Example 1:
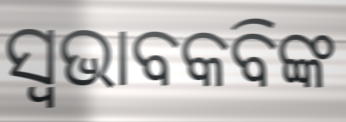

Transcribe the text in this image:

ସ୍ଵଭାବକବିଙ୍କ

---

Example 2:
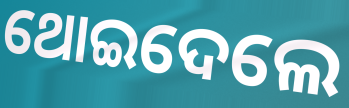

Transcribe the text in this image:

ଥୋଇଦେଲେ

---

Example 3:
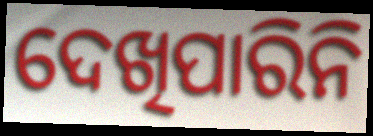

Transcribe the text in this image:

ଦେଖିପାରିନି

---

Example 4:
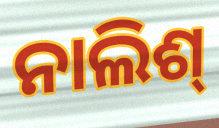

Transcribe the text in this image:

ନାଲିଶ୍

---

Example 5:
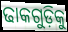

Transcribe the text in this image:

ଢାକଗୁଡ଼ିକୁ